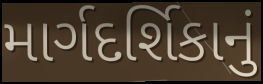
માર્ગદર્શિકાનું